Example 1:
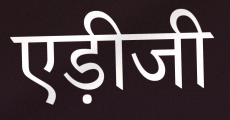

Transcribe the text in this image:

एड़ीजी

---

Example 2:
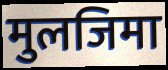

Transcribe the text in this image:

मुलजिमा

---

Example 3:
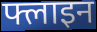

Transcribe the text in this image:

फ्लाइन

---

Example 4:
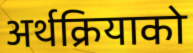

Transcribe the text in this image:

अर्थक्रियाको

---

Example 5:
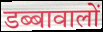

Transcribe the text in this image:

डब्बावालों